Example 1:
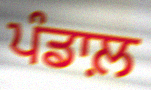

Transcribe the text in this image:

ਪੰਡਾਲ਼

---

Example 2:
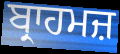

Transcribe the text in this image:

ਬ੍ਰਾਹਮਜ਼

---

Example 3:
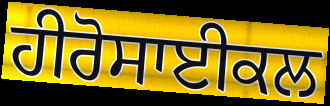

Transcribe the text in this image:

ਹੀਰੋਸਾਈਕਲ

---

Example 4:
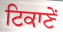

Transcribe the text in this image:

ਟਿਕਾਣੇਂ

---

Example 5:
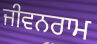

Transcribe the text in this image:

ਜੀਵਨਰਾਮ